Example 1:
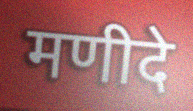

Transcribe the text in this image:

मणीदे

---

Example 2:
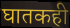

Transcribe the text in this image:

घातकही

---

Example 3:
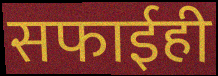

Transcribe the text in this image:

सफाईही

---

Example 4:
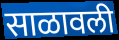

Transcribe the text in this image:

साळावली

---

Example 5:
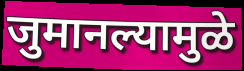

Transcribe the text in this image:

जुमानल्यामुळे